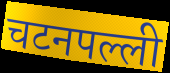
चटनपल्ली